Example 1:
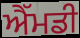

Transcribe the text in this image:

ਐੱਮਡੀ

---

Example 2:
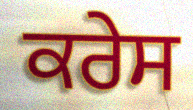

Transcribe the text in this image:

ਕਰੇਸ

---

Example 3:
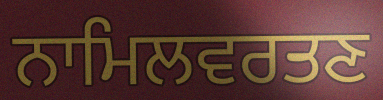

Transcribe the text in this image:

ਨਾਮਿਲਵਰਤਣ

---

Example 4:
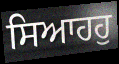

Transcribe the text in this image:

ਸਿਆਹਹੁ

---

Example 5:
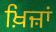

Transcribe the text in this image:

ਖ਼ਿਜ਼ਾਂ